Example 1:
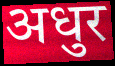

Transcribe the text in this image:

अधुर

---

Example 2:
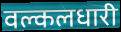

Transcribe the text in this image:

वल्कलधारी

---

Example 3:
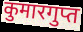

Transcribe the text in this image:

कुमारगुप्त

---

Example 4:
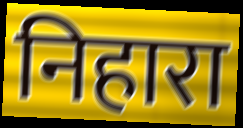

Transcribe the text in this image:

निहारा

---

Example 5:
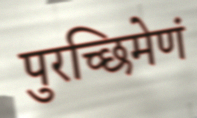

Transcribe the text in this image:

पुरच्छिमेणं